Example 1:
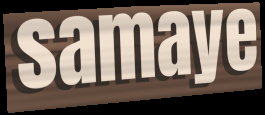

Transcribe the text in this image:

samaye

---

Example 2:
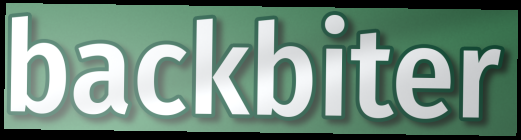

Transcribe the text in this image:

backbiter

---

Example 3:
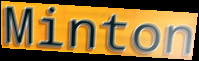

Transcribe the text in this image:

Minton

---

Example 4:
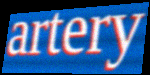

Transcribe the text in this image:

artery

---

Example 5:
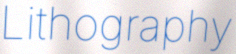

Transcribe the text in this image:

Lithography